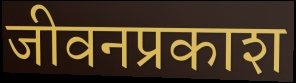
जीवनप्रकाश